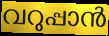
വറുപ്പാൻ